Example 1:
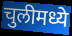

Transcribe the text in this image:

चुलीमध्ये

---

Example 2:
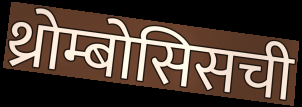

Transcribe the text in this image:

थ्रोम्बोसिसची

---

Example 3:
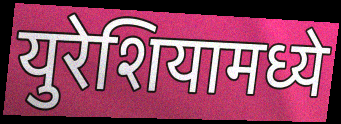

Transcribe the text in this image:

युरेशियामध्ये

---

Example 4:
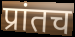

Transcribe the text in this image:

प्रांतच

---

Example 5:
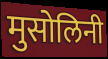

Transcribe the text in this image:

मुसोलिनी